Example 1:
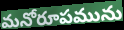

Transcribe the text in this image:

మనోరూపమును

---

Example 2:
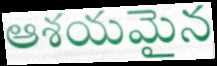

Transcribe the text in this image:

ఆశయమైన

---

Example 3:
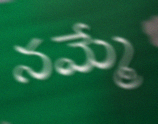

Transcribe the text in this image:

నమ్మే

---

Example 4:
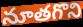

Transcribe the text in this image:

నూతగొని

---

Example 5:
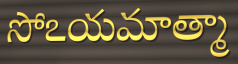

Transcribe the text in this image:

సోఽయమాత్మా